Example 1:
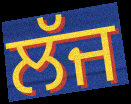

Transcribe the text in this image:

ਲੱਜ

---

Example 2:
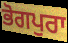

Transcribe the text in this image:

ਭੋਗਪੁਰਾ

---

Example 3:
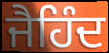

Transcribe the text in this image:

ਜੈਹਿੰਦ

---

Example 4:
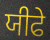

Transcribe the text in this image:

ਯੀਫੇ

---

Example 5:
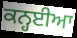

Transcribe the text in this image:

ਕਨ੍ਹਈਆ